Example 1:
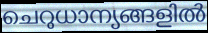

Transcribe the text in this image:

ചെറുധാന്യങ്ങളിൽ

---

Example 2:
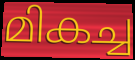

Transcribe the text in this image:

മികച്ച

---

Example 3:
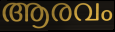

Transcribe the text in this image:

ആരവം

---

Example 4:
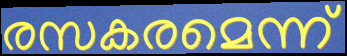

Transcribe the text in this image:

രസകരമെന്ന്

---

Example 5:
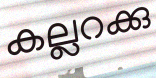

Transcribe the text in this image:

കല്ലറക്കു